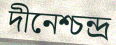
দীনেশ্চন্দ্র